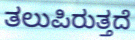
ತಲುಪಿರುತ್ತದೆ